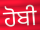
ਹੋਬੀ